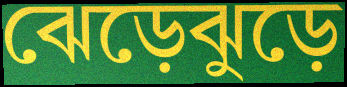
ঝেড়েঝুড়ে